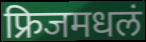
फ्रिजमधलं